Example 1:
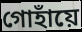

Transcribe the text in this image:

গোহাঁয়ে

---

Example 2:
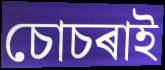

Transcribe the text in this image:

চোচৰাই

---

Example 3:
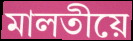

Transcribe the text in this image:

মালতীয়ে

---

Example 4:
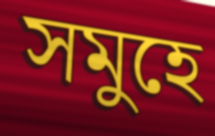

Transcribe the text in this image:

সমুহে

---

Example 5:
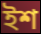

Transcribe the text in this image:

ইশ